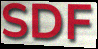
SDF